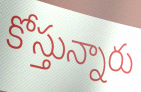
కోస్తున్నారు